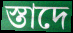
স্তাদে